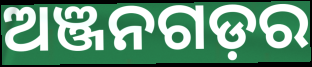
ଅଞ୍ଜନଗଡ଼ର